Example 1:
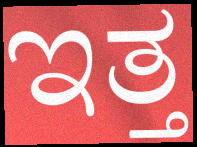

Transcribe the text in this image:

ಇತ್ತ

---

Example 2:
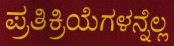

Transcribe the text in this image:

ಪ್ರತಿಕ್ರಿಯೆಗಳನ್ನೆಲ್ಲ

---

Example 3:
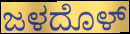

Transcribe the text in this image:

ಜಳದೊಳ್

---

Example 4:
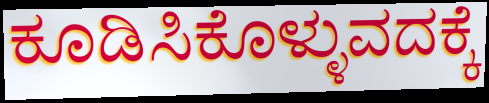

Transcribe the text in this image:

ಕೂಡಿಸಿಕೊಳ್ಳುವದಕ್ಕೆ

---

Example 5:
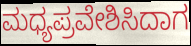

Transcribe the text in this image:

ಮಧ್ಯಪ್ರವೇಶಿಸಿದಾಗ